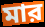
মার